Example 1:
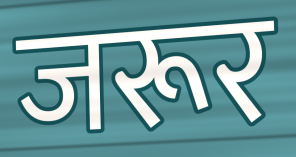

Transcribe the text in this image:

जरूर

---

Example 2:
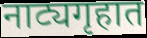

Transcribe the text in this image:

नाट्यगृहात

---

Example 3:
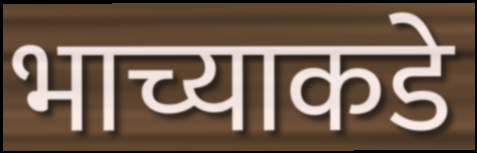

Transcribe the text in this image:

भाच्याकडे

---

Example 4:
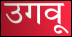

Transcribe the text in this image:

उगवू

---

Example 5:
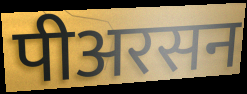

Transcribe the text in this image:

पीअरसन